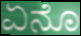
ಏನೊ